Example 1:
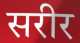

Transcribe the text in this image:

सरीर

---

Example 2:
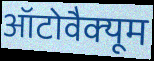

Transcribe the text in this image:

ऑटोवैक्यूम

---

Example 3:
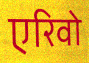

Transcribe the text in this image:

एरिवो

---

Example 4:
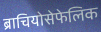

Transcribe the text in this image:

ब्राचियोसेफेलिक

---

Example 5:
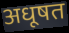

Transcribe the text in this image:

अधूषत